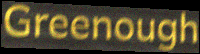
Greenough